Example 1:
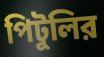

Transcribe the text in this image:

পিটুলির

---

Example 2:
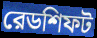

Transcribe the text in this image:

রেডশিফট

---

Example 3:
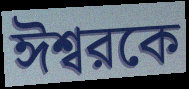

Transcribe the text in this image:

ঈশ্বরকে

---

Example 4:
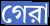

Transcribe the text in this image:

গেরা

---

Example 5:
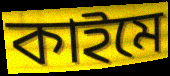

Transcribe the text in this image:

কাইমে